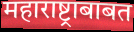
महाराष्ट्राबाबत